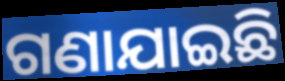
ଗଣାଯାଇଛି